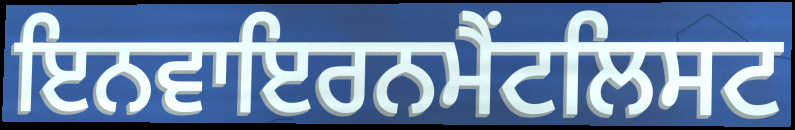
ਇਨਵਾਇਰਨਮੈਂਟਲਿਸਟ